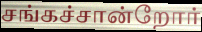
சங்கச்சான்றோர்